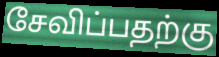
சேவிப்பதற்கு